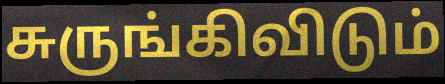
சுருங்கிவிடும்